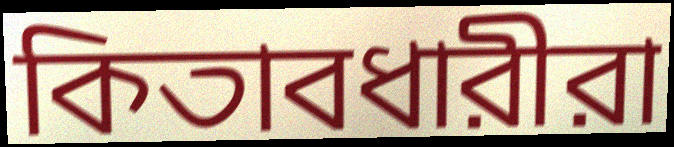
কিতাবধারীরা